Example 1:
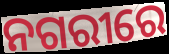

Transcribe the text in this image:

ନଗରୀରେ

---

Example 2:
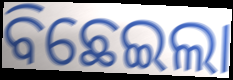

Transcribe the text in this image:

ବିଛେଇଲା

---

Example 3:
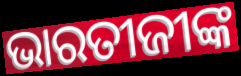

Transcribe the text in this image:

ଭାରତୀଜୀଙ୍କ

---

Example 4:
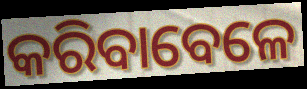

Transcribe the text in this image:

କରିବାବେଳେ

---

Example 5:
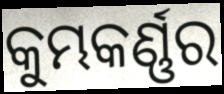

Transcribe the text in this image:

କୁମ୍ଭକର୍ଣ୍ଣର